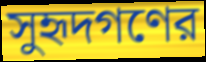
সুহৃদগণের